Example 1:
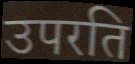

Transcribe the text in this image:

उपरति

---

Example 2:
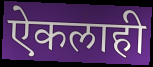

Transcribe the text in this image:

ऐकलाही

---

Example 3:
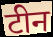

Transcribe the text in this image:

टीन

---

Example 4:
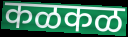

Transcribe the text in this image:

कळकळ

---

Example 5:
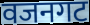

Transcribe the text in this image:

वजनगट